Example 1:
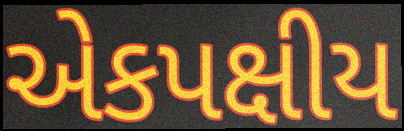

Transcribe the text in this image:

એકપક્ષીય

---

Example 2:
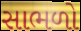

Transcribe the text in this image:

સાભળો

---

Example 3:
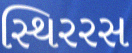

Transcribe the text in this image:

સ્થિરરસ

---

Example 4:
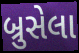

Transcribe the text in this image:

બ્રુસેલા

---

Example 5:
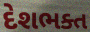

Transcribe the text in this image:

દેશભક્ત